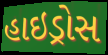
હાઇડ્રોસ